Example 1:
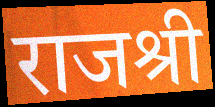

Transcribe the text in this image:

राजश्री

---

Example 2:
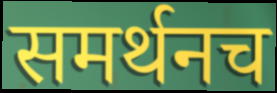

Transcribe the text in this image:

समर्थनच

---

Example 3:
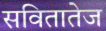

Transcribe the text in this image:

सवितातेज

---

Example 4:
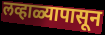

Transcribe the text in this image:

लव्हाळ्यापासून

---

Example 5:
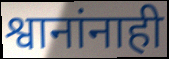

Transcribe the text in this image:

श्वानांनाही